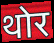
थोर